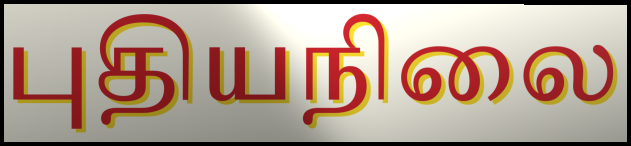
புதியநிலை